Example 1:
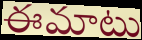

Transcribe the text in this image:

ఈమాటు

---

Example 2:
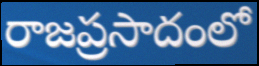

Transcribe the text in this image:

రాజప్రసాదంలో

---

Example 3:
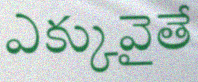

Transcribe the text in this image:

ఎక్కువైతే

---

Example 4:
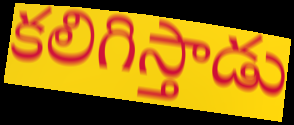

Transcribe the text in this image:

కలిగిస్తాడు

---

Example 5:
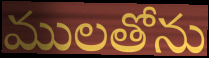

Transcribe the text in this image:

ములతోను